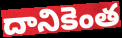
దానికెంత